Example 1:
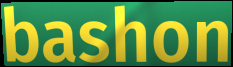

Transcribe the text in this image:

bashon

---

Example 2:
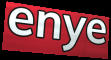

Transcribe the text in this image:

enye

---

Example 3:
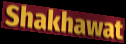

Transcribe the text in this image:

Shakhawat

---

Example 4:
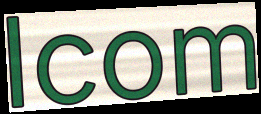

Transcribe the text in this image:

Icom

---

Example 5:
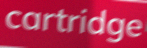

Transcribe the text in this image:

cartridge